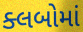
ક્લબોમાં